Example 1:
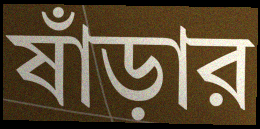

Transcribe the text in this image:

ষাঁড়ার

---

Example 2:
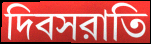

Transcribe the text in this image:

দিবসরাতি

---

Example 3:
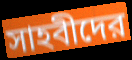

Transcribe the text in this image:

সাহবীদের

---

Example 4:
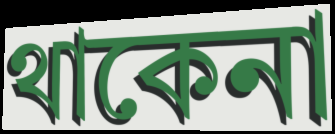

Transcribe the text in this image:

থাকেনা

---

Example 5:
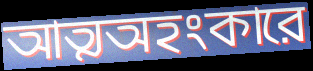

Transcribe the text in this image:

আত্মঅহংকারে